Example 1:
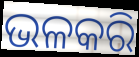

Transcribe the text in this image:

ଭଳକରି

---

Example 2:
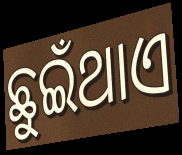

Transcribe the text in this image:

ଛୁଇଁଥାଏ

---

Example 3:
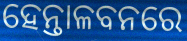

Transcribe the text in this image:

ହେନ୍ତାଳବନରେ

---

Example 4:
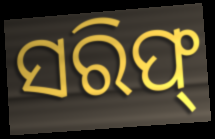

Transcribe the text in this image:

ସରିଫ୍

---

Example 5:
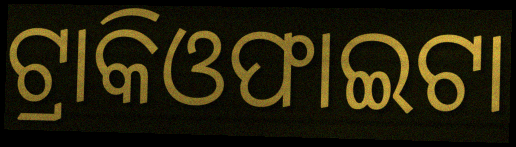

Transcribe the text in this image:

ଟ୍ରାକିଓଫାଇଟା